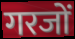
गरजों